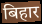
बिहार